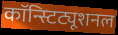
कॉन्स्टिट्यूशनल